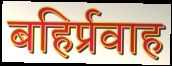
बहिर्प्रवाह